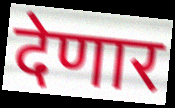
देणार